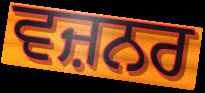
ਵਜ਼ਨਰ